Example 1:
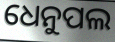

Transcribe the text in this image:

ଧେନୁପଲ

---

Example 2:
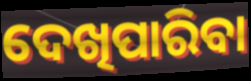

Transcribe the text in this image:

ଦେଖିପାରିବା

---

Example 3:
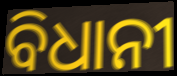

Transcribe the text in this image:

ବିଧାନୀ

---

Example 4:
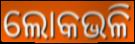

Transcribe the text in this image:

ଲୋକଭଳି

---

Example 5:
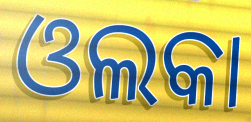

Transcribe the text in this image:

ଓଲକା